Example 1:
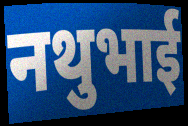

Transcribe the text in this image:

नथुभाई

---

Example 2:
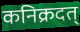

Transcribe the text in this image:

कनिक्रदत्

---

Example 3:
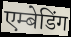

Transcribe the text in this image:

एम्बेडिंग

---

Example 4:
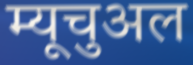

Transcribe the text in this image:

म्यूचुअल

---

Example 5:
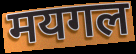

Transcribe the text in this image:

मयगल